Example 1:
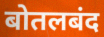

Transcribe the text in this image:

बोतलबंद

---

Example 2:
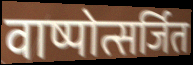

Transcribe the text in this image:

वाष्पोत्सर्जित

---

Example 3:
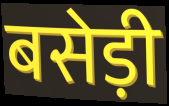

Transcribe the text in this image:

बसेड़ी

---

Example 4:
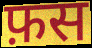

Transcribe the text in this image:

फ़स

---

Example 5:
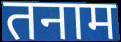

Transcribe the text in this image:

तनाम